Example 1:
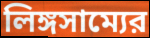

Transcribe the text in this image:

লিঙ্গসাম্যের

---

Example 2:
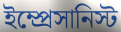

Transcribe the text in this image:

ইম্প্রেসানিস্ট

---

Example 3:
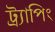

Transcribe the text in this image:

ট্র্যাপিং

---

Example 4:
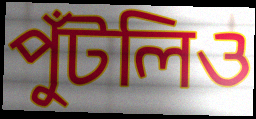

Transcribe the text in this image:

পুঁটলিও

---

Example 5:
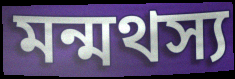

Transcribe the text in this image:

মন্মথস্য